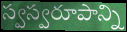
స్వస్వరూపాన్ని